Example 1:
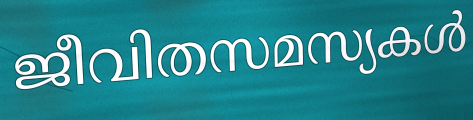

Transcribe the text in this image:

ജീവിതസമസ്യകൾ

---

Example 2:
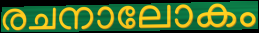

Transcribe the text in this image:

രചനാലോകം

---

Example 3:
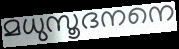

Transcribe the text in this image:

മധുസൂദനനെ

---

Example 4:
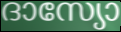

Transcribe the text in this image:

ദാസ്യോ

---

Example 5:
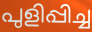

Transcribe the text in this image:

പുളിപ്പിച്ച